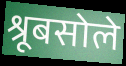
श्रूबसोले